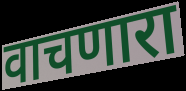
वाचणारा